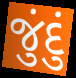
જુંદું